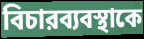
বিচারব্যবস্থাকে